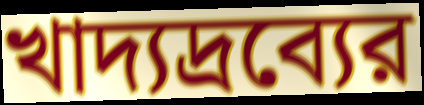
খাদ্যদ্রব্যের